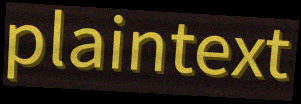
plaintext